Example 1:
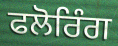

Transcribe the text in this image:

ਫਲੋਰਿੰਗ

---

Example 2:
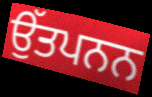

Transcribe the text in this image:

ਉੱਤਪਨਨ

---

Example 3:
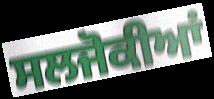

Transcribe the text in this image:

ਸਲਜੋਕੀਆਂ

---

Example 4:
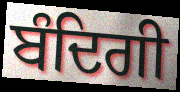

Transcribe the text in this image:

ਬੰਦਿਗੀ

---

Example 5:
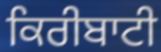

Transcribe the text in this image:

ਕਿਰੀਬਾਟੀ